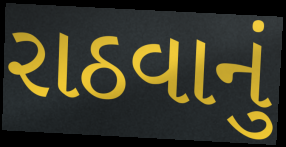
રાઠવાનું